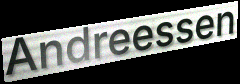
Andreessen